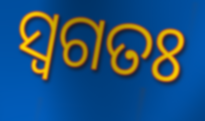
ସ୍ଵଗତଃ